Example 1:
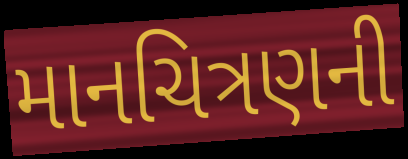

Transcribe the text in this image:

માનચિત્રણની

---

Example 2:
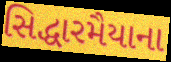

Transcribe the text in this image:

સિદ્ધારમૈયાના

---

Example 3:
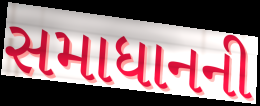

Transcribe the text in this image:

સમાધાનની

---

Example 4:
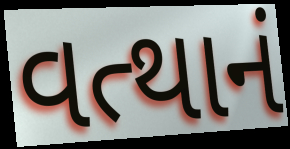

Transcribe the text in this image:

વત્થાનં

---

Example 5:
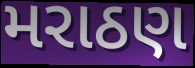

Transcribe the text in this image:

મરાઠણ